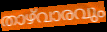
താഴ്‌വാരവും